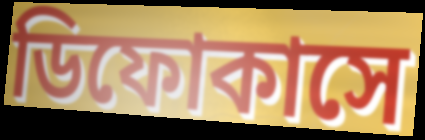
ডিফোকাসে